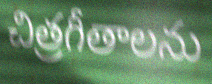
చిత్రగీతాలను